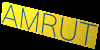
AMRUT